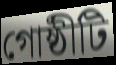
গোষ্ঠীটি